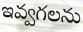
ఇవ్వగలను